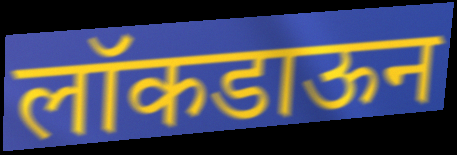
लॉकडाऊन